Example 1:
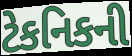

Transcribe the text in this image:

ટેકનિકની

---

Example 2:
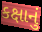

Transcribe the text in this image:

કક્ષાનું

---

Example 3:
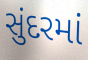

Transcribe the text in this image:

સુંદરમાં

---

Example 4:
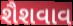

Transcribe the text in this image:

શૈશવાવ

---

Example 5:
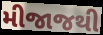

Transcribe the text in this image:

મીજાજથી